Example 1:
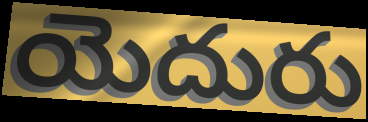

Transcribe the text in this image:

యెదురు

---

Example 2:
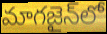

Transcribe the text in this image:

మాగజైన్‌లో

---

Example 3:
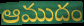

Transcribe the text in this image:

ఆముదం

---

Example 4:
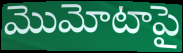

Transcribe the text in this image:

మొమోటాపై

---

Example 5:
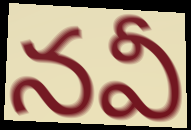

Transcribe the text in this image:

నవీ